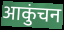
आकुंचन